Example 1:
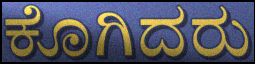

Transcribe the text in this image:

ಕೊಗಿದರು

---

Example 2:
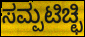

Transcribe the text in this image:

ಸಮ್ಪಟಿಚ್ಛಿ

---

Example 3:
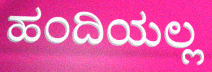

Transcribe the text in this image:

ಹಂದಿಯಲ್ಲ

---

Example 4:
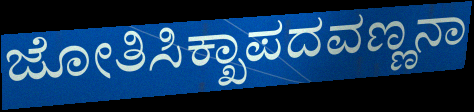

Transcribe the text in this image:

ಜೋತಿಸಿಕ್ಖಾಪದವಣ್ಣನಾ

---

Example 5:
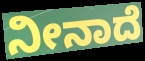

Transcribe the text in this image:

ನೀನಾದೆ